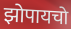
झोपायचो